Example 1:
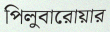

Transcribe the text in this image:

পিলুবারোয়ার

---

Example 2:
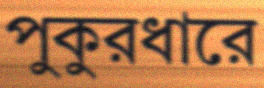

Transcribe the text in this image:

পুকুরধারে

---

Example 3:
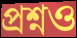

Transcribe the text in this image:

প্রশ্নও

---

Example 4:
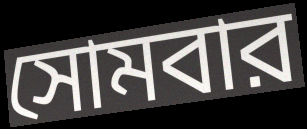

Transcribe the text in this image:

সোমবার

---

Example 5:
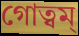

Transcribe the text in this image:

গোত্বম্